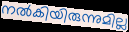
നൽകിയിരുന്നുമില്ല